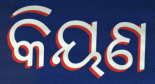
କିୟଣ